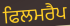
ਫਿਲਮਰੈਪ